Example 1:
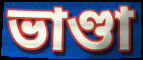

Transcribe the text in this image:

ভাণ্ডা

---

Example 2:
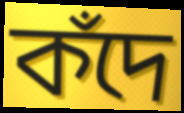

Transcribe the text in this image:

কঁদে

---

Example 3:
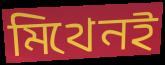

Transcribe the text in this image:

মিথেনই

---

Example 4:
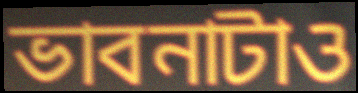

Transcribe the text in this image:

ভাবনাটাও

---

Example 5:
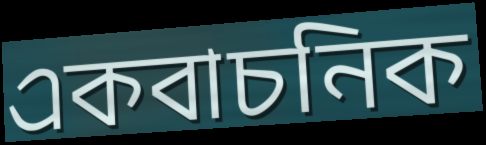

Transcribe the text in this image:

একবাচনিক